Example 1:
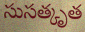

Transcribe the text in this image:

సుసత్కృత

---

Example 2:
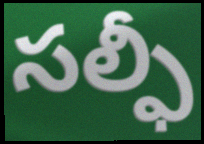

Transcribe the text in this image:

సల్ఫీ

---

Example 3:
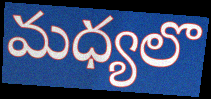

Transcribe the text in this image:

మధ్యలొ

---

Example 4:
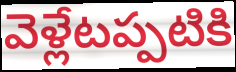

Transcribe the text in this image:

వెళ్లేటప్పటికి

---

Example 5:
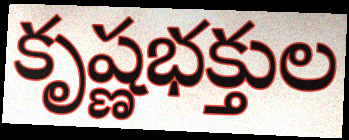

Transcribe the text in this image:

కృష్ణభక్తుల